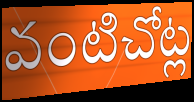
వంటిచోట్ల